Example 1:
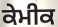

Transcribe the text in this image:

ਕੇਮੀਕ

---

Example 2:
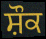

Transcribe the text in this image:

ਸ਼ੌਕ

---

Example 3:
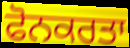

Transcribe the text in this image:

ਫੋਨਕਰਤਾ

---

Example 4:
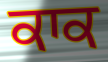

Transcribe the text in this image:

ਕਾਕ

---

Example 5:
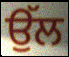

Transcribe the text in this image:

ਉੱਲ